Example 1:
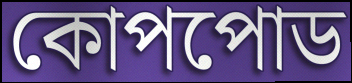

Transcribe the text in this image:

কোপপোড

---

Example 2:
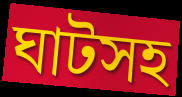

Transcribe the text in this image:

ঘাটসহ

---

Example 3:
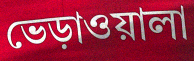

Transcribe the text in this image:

ভেড়াওয়ালা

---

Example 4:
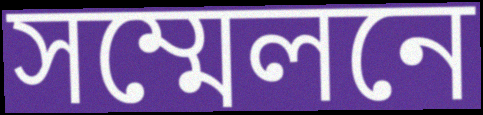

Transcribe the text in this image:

সম্মেলনে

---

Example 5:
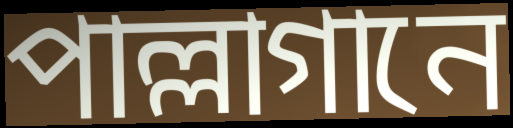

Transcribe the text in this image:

পাল্লাগানে